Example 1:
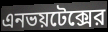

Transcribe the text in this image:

এনভয়টেক্সের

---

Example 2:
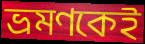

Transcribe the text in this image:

ভ্রমণকেই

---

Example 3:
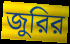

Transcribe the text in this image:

জুরির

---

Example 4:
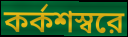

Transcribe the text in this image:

কর্কশস্বরে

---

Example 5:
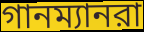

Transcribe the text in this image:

গানম্যানরা